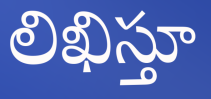
లిఖిస్తూ